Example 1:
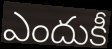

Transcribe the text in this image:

ఎందుకీ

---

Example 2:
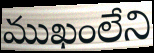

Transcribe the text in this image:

ముఖంలేని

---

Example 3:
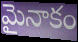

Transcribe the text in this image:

మైనాకం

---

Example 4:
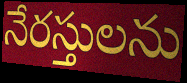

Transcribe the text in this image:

నేరస్తులను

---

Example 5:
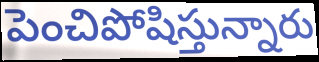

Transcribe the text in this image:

పెంచిపోషిస్తున్నారు